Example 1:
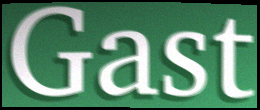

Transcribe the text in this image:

Gast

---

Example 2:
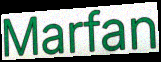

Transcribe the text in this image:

Marfan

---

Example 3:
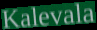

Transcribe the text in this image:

Kalevala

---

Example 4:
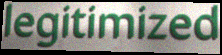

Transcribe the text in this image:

legitimized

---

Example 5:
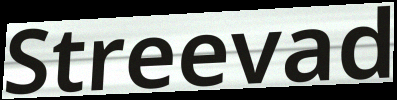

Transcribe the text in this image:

Streevad